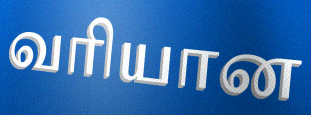
வரியான